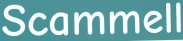
Scammell